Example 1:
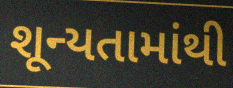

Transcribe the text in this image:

શૂન્યતામાંથી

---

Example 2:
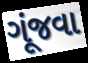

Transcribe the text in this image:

ગૂંજવા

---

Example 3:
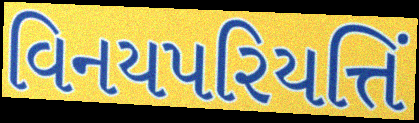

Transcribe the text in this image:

વિનયપરિયત્તિં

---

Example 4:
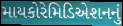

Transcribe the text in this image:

માયકોરેમિડિએશનનું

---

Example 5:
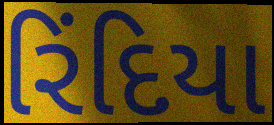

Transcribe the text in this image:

રિંદિયા